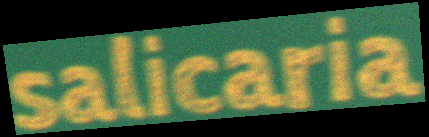
salicaria